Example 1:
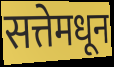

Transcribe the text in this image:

सत्तेमधून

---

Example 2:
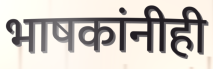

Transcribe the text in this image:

भाषकांनीही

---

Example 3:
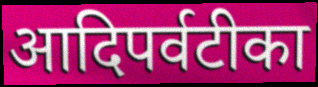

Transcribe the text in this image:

आदिपर्वटीका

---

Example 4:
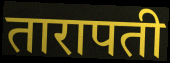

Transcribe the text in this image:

तारापती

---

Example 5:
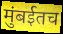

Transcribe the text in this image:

मुंबईतच